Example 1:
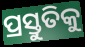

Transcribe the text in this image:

ପ୍ରସ୍ତୁତିକୁ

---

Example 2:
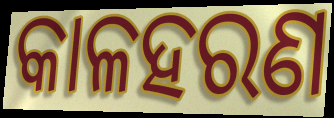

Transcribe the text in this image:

କାଳହରଣ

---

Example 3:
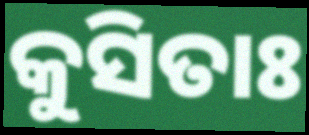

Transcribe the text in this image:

କୁସିତାଃ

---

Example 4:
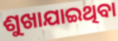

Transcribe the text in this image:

ଶୁଖାଯାଇଥିବା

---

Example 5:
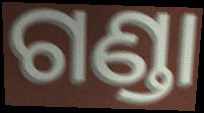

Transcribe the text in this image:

ଗଣ୍ଡା